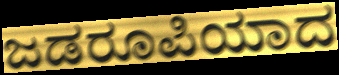
ಜಡರೂಪಿಯಾದ